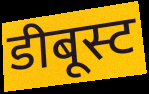
डीबूस्ट